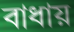
বাধায়